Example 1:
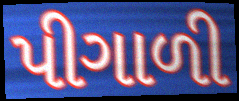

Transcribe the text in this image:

પીગાળી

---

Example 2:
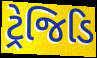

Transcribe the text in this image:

ટ્રેજિડિ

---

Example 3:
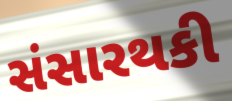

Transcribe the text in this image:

સંસારથકી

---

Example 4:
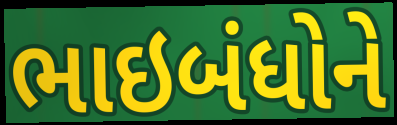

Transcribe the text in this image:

ભાઇબંધોને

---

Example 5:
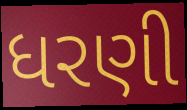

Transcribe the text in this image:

ધરણી